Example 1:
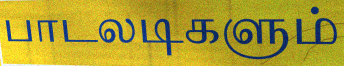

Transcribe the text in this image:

பாடலடிகளும்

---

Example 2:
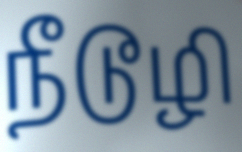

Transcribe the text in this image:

நீடூழி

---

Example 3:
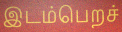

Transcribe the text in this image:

இடம்பெறச்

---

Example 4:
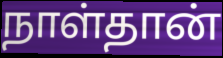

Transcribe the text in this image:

நாள்தான்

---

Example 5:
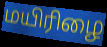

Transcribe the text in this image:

மயிரிழை